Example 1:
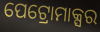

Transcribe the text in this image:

ପେଟ୍ରୋମାକ୍ସର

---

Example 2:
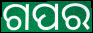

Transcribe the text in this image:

ଗପର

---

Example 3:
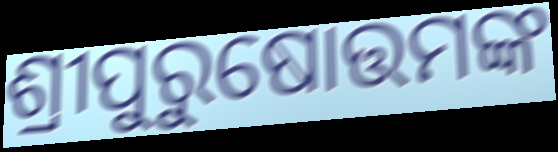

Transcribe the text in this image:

ଶ୍ରୀପୁରୁଷୋତ୍ତମଙ୍କ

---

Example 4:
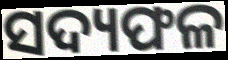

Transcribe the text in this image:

ସଦ୍ୟଫଳ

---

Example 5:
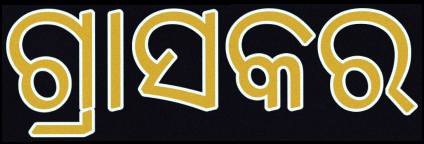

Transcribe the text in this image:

ଗ୍ରାସକର